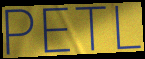
PETL